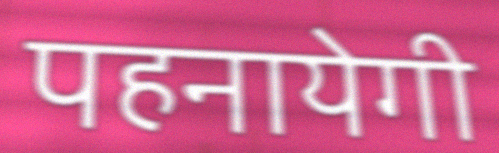
पहनायेगी